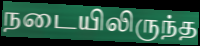
நடையிலிருந்த